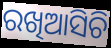
ରଖିଆସିଚି